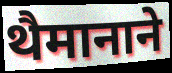
थैमानाने